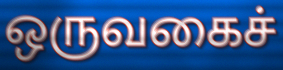
ஒருவகைச்